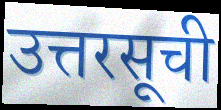
उत्तरसूची